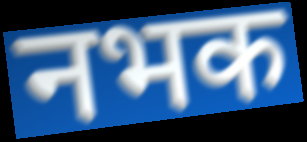
नभक